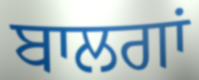
ਬਾਲਗਾਂ